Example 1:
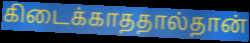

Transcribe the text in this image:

கிடைக்காததால்தான்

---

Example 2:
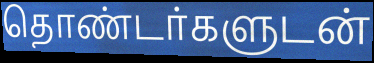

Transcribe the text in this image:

தொண்டர்களுடன்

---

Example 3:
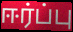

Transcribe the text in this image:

ஈர்ப்பு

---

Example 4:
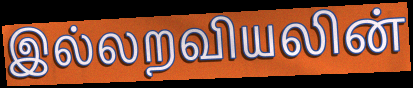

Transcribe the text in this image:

இல்லறவியலின்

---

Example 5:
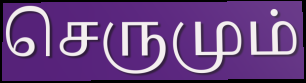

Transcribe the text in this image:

செருமும்